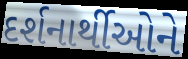
દર્શનાર્થીઓને